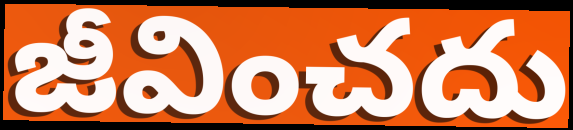
జీవించదు